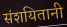
संशयितानी